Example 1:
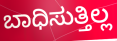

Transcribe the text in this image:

ಬಾಧಿಸುತ್ತಿಲ್ಲ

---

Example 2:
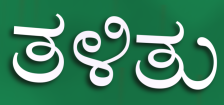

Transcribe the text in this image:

ತಳಿತು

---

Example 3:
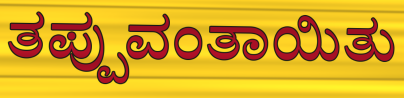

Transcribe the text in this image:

ತಪ್ಪುವಂತಾಯಿತು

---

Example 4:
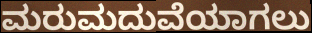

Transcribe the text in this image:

ಮರುಮದುವೆಯಾಗಲು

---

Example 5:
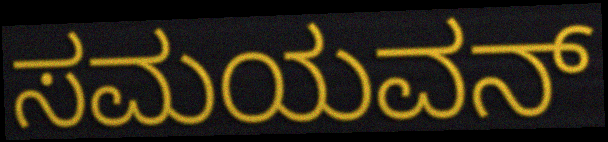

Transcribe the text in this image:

ಸಮಯವನ್